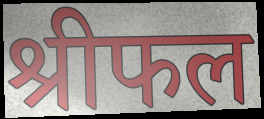
श्रीफल